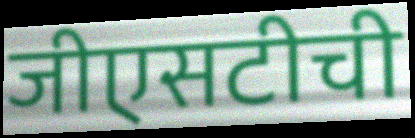
जीएसटीची